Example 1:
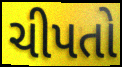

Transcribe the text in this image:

ચીપતો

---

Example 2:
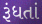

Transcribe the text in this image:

રૂંધતાં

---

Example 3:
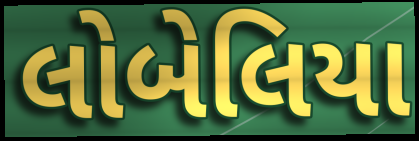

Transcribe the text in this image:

લોબેલિયા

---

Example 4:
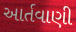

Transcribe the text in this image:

આર્તવાણી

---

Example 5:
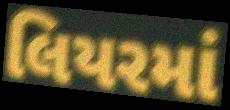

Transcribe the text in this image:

લિયરમાં